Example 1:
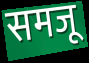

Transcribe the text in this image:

समजू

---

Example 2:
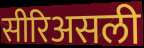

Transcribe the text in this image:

सीरिअसली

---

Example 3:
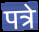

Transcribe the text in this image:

पत्रे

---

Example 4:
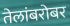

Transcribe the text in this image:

तेलांबरोबर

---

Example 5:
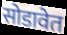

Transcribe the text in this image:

सोडावेत